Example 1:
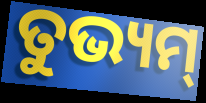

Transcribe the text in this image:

ତୁଭ୍ୟମ୍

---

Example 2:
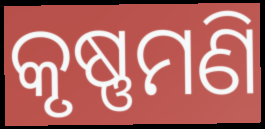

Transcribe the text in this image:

କୃଷ୍ଣମଣି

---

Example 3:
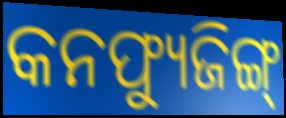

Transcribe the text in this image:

କନଫ୍ୟୁଜିଙ୍ଗ୍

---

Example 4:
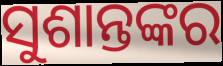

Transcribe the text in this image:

ସୁଶାନ୍ତଙ୍କର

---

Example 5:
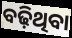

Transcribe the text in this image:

ବଢ଼ିଥିବା